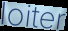
loiter